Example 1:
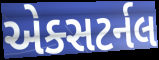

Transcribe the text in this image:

એક્સટર્નલ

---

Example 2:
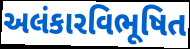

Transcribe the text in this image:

અલંકારવિભૂષિત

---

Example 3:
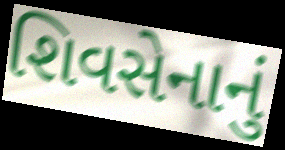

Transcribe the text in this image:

શિવસેનાનું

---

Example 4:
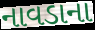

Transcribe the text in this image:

નાવડાના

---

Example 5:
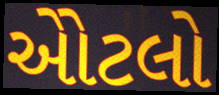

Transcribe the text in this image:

એોટલો